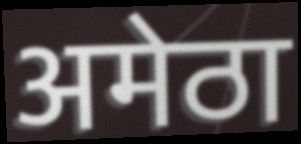
अमेठा